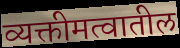
व्यक्तीमत्वातील